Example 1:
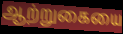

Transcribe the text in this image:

ஆற்றுகையை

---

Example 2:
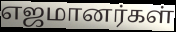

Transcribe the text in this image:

எஜமானர்கள்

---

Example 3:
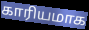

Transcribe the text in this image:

காரியமாக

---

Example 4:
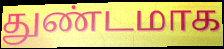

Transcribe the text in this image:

துண்டமாக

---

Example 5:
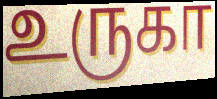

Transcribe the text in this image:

உருகா